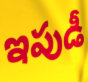
ఇపుడీ